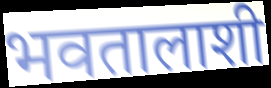
भवतालाशी